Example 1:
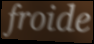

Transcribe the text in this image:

froide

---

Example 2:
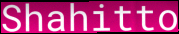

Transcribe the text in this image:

Shahitto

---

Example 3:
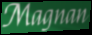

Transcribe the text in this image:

Magnan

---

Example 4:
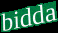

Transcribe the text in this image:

bidda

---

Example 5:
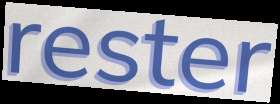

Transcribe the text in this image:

rester